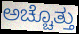
ಅಚ್ಚೊತ್ತು